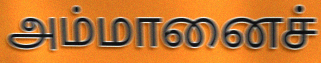
அம்மானைச்